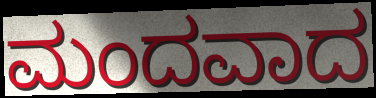
ಮಂದವಾದ